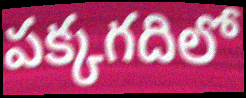
పక్కగదిలో